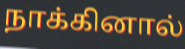
நாக்கினால்